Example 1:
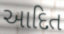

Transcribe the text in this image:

આદિત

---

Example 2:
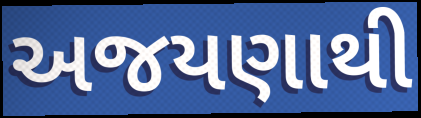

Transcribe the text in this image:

અજયણાથી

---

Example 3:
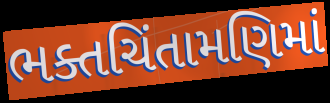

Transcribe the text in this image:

ભક્તચિંતામણિમાં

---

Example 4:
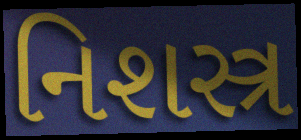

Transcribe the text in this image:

નિશસ્ત્ર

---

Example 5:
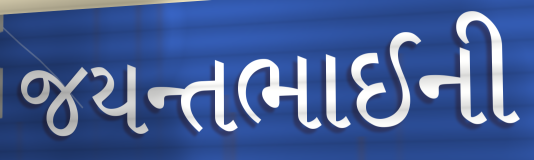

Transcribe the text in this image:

જયન્તભાઈની